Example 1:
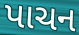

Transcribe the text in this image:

પાચન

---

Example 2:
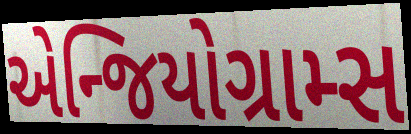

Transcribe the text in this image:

એન્જિયોગ્રામ્સ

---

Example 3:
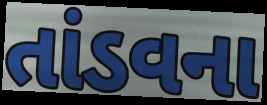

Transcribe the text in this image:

તાંડવના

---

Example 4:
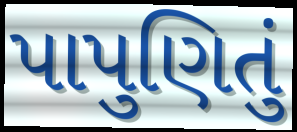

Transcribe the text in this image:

પાપુણિતું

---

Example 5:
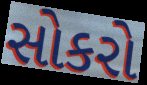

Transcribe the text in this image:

સોકરો